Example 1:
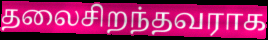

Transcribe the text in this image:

தலைசிறந்தவராக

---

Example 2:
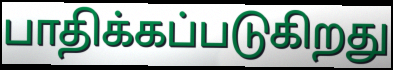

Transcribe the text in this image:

பாதிக்கப்படுகிறது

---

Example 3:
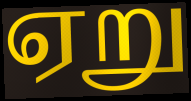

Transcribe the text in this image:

ஏறு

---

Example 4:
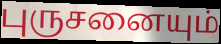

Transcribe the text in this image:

புருசனையும்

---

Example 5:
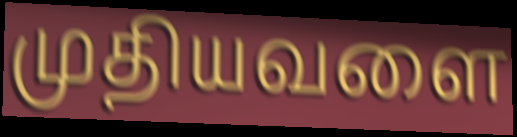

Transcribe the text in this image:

முதியவளை